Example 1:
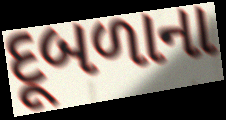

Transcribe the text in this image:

દૂબળાના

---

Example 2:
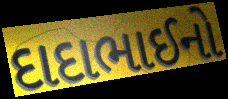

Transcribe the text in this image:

દાદાભાઈનો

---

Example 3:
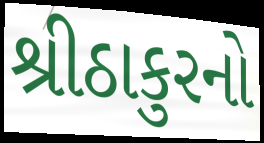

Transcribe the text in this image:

શ્રીઠાકુરનો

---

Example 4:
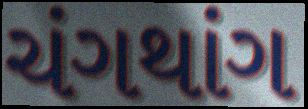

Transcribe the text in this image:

ચંગથાંગ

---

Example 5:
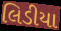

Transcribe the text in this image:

લિડીયા